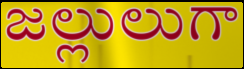
జల్లులుగా